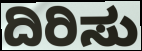
ದಿರಿಸು